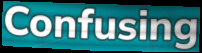
Confusing